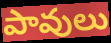
పావులు